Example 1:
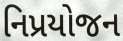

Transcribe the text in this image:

નિપ્રયોજન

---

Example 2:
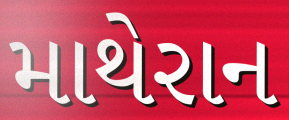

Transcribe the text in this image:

માથેરાન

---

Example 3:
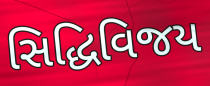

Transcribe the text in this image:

સિદ્ધિવિજય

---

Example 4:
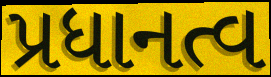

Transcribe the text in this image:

પ્રધાનત્વ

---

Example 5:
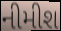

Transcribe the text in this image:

નીમીશ